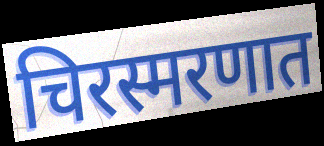
चिरस्मरणात